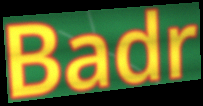
Badr